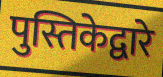
पुस्तिकेद्वारे